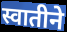
स्वातीने